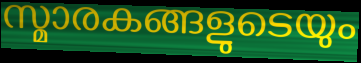
സ്മാരകങ്ങളുടെയും